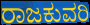
ರಾಜಕುವರಿ